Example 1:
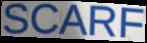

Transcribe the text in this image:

SCARF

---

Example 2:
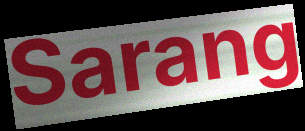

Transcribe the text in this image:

Sarang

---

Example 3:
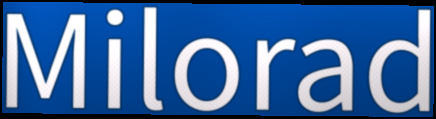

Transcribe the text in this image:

Milorad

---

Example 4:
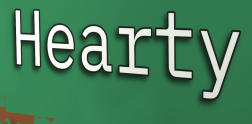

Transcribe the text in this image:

Hearty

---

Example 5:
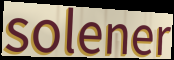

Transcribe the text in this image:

solener